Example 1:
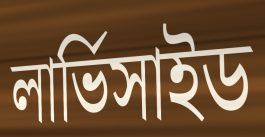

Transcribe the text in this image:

লার্ভিসাইড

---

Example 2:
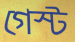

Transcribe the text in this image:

গেস্ট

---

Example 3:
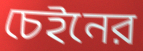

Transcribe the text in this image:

চেইনের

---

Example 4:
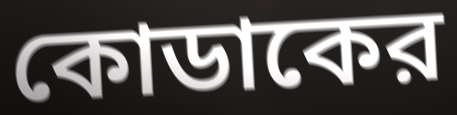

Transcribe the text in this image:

কোডাকের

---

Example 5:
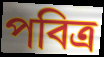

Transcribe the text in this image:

পবিত্র